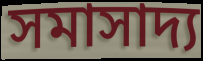
সমাসাদ্য